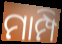
ମାମ୍ପି